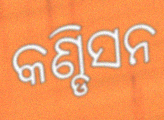
କଣ୍ଡିସନ